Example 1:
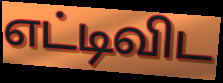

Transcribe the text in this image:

எட்டிவிட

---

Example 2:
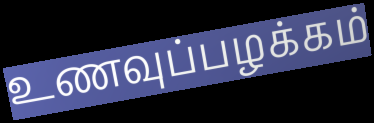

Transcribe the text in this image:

உணவுப்பழக்கம்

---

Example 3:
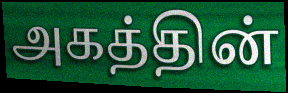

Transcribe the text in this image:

அகத்தின்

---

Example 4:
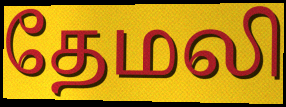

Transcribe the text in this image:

தேமலி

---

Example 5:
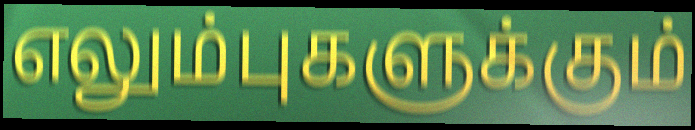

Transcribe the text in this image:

எலும்புகளுக்கும்